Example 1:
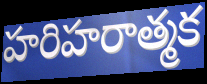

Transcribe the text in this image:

హరిహరాత్మక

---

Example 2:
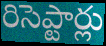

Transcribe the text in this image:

రిసెప్టార్లు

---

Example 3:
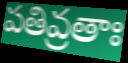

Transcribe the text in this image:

పతివ్రతాః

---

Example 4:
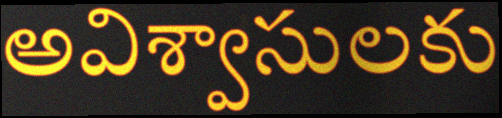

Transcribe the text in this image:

అవిశ్వాసులకు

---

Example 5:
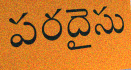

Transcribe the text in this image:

పరదైసు